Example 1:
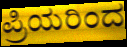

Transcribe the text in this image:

ಪ್ರಿಯರಿಂದ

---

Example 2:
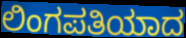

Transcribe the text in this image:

ಲಿಂಗಪತಿಯಾದ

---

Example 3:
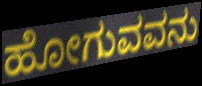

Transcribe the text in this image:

ಹೋಗುವವನು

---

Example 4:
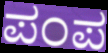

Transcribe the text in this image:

ಪಂಪ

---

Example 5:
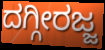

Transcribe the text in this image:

ದಗ್ಗೀರಜ್ಜ